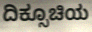
ದಿಕ್ಸೂಚಿಯ